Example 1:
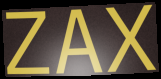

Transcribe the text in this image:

ZAX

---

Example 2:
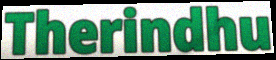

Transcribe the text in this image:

Therindhu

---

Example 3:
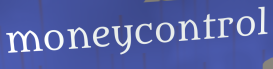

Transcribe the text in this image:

moneycontrol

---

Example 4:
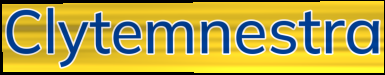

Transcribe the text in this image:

Clytemnestra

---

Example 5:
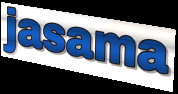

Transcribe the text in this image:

jasama